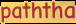
paththa